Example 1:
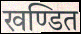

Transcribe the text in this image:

खण्डित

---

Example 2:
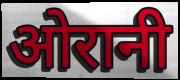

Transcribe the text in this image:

ओरानी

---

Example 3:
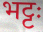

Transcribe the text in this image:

भट्टः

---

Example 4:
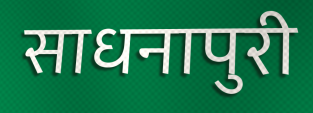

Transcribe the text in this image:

साधनापुरी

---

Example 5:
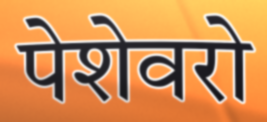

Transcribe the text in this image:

पेशेवरो